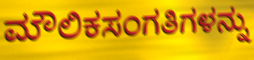
ಮೌಲಿಕಸಂಗತಿಗಳನ್ನು